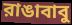
রাঙাবাবু